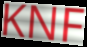
KNF